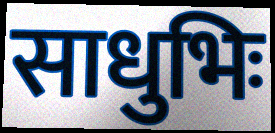
साधुभिः